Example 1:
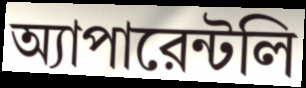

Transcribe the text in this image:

অ্যাপারেন্টলি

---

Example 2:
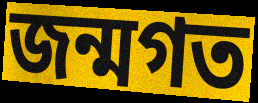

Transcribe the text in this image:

জন্মগত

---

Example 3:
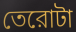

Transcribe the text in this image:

তেরোটা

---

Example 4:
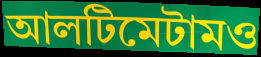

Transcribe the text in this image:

আলটিমেটামও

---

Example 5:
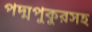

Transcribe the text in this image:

পদ্মপুকুরসহ